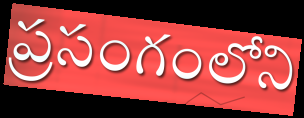
ప్రసంగంలోని